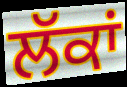
ਲੱਕਾਂ